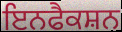
ਇਨਫੈਕਸ਼ਨ